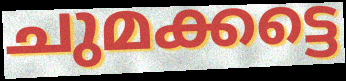
ചുമക്കട്ടെ